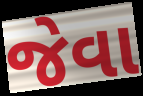
જેવા